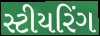
સ્ટીયરિંગ